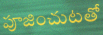
పూజించుటతో